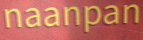
naanpan